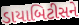
ડાયાબિટીસને